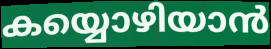
കയ്യൊഴിയാൻ